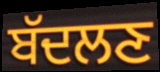
ਬੱਦਲਣ